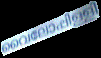
വൈലോപ്പിള്ളി